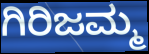
ಗಿರಿಜಮ್ಮ